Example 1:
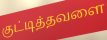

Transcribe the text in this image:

குட்டித்தவளை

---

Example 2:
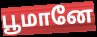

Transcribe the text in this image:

பூமானே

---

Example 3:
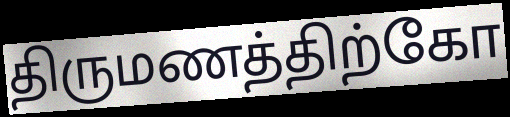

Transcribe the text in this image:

திருமணத்திற்கோ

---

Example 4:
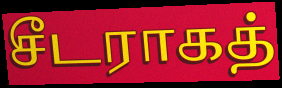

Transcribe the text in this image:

சீடராகத்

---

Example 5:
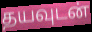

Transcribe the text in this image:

தயவுடன்